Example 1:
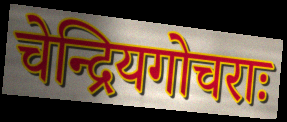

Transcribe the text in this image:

चेन्द्रियगोचराः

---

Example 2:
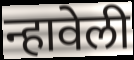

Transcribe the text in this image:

न्हावेली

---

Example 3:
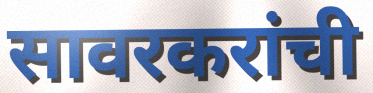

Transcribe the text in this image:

सावरकरांची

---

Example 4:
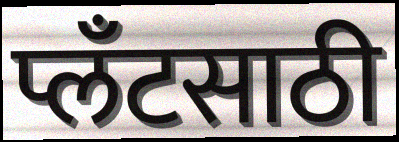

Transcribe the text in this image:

प्लँटसाठी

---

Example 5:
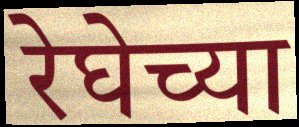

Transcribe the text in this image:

रेघेच्या